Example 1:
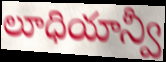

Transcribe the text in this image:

లూధియాన్వీ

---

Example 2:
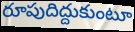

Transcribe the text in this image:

రూపుదిద్దుకుంటూ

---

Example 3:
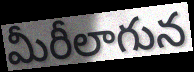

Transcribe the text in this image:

మీరీలాగున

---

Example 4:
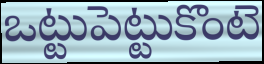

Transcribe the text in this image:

ఒట్టుపెట్టుకొంటె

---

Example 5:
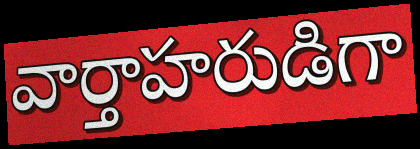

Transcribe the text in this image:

వార్తాహరుడిగా